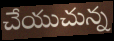
చేయుచున్న